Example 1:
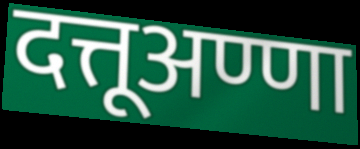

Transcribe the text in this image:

दत्तूअण्णा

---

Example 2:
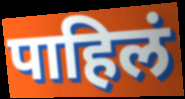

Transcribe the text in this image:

पाहिलं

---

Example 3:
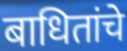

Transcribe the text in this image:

बाधितांचे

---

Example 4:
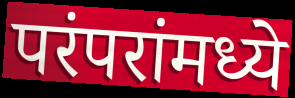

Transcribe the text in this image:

परंपरांमध्ये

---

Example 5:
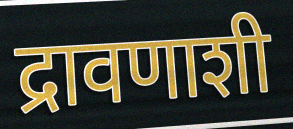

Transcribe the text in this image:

द्रावणाशी